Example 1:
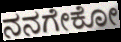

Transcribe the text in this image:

ನನಗೇಕೋ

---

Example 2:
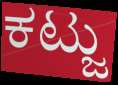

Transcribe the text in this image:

ಕಟ್ಜು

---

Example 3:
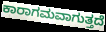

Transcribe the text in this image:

ಕಾರಾಗಮವಾಗುತ್ತದೆ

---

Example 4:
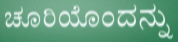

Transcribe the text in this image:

ಚೂರಿಯೊಂದನ್ನು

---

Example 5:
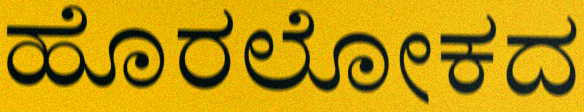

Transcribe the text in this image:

ಹೊರಲೋಕದ